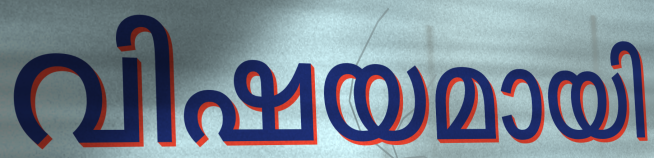
വിഷയമായി